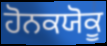
ਹੋਨਕਯੋਕੂ